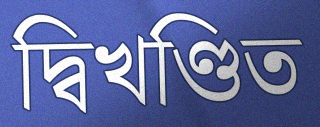
দ্বিখণ্ডিত